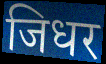
जिधर